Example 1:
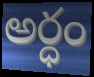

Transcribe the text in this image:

అర్ధం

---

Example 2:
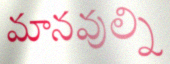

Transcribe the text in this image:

మానవుల్ని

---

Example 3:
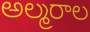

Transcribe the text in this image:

అల్మరాల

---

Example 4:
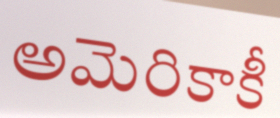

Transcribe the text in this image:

అమెరికాకీ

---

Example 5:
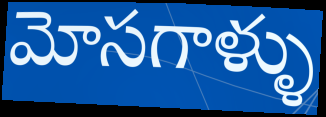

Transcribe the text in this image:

మోసగాళ్ళు